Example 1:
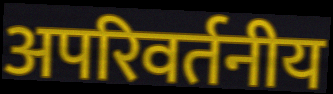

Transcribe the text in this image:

अपरिवर्तनीय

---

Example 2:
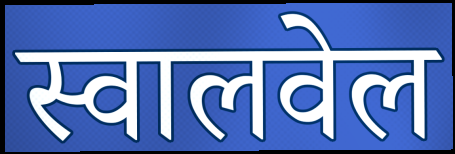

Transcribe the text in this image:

स्वालवेल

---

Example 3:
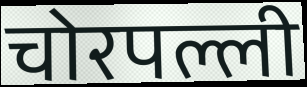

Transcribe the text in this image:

चोरपल्ली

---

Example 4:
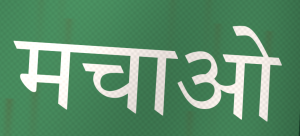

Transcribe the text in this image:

मचाओ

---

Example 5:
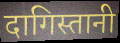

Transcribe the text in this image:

दागिस्तानी